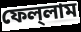
ফেল্‌লাম